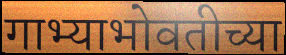
गाभ्याभोवतीच्या